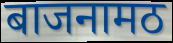
बाजनामठ